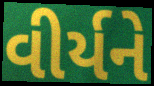
વીર્યને